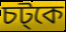
চট্‌কে